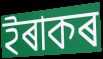
ইৰাকৰ